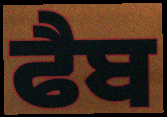
ਫੈਬ